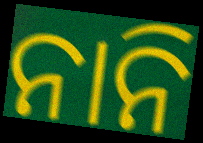
ନାନି